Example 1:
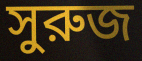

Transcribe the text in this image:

সুরুজ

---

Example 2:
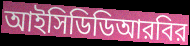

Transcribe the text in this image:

আইসিডিডিআরবির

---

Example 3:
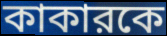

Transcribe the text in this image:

কাকারকে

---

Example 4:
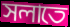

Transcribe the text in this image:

সলাতে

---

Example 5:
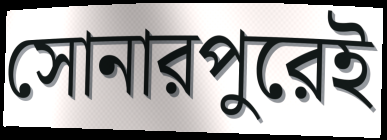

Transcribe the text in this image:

সোনারপুরেই